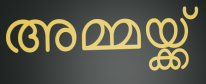
അമ്മയ്ക്ക്